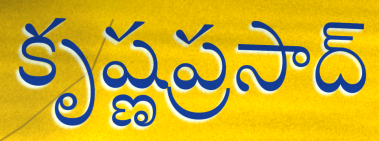
కృష్ణప్రసాద్